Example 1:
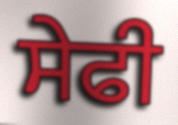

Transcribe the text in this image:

ਸੇਫੀ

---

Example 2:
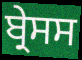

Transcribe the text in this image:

ਬ੍ਰੇਸਸ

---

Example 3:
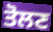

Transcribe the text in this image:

ਤੋਲਣ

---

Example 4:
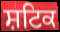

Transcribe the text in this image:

ਸ਼ਟਿਕ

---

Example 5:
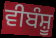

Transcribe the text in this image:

ਵੀਬੰਸ਼ੂ